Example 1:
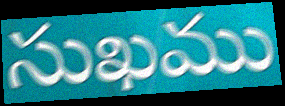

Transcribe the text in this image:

సుఖము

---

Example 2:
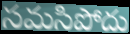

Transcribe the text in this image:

సమసిపోదు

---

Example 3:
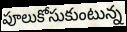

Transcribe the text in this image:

పూలుకోసుకుంటున్న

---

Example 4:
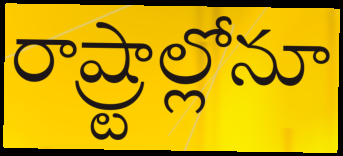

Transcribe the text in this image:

రాష్ర్టాల్లోనూ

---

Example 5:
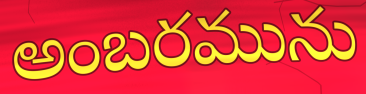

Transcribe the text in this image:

అంబరమును